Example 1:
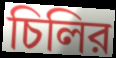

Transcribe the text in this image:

চিলির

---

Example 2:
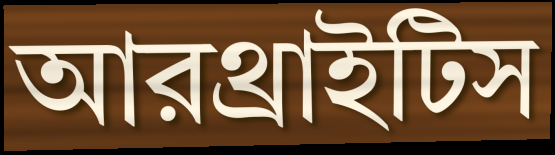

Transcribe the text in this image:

আরথ্রাইটিস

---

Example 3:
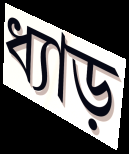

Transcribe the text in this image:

ধ্যাড়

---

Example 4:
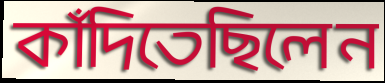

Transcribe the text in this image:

কাঁদিতেছিলেন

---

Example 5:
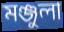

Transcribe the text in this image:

মঞ্জুলা